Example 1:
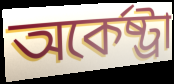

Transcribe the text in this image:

অর্কেষ্ট্রা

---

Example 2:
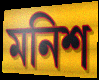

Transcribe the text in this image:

মনিশ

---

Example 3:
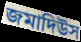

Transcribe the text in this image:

জমাদিউস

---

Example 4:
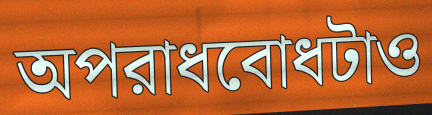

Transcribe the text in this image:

অপরাধবোধটাও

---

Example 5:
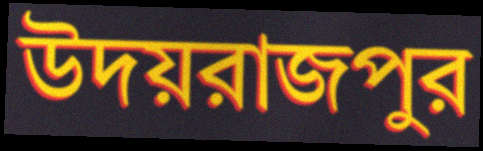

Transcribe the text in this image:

উদয়রাজপুর